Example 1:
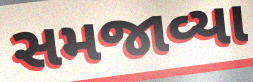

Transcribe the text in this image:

સમજાવ્યા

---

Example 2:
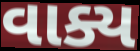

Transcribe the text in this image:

વાક્ય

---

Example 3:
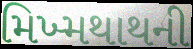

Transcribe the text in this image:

મિખ્મથાથની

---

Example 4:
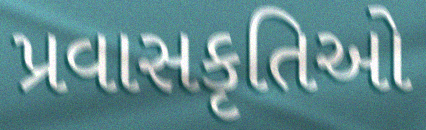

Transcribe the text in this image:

પ્રવાસકૃતિઓ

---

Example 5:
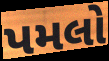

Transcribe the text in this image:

પમલો